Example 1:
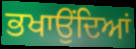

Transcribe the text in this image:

ਭਖਾਉਂਦਿਆਂ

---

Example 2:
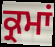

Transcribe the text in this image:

ਕ੍ਰਮਾਂ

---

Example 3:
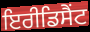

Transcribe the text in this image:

ਇਰੀਡਿਸੈਂਟ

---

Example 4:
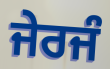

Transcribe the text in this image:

ਜੇਰਜੰ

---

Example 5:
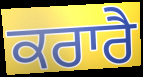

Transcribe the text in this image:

ਕਰਾਰੈ